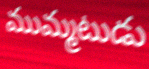
ముమ్మటుడు